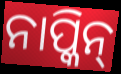
ନାପ୍କିନ୍